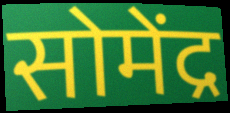
सोमेंद्र